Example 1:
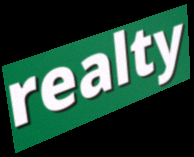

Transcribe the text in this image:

realty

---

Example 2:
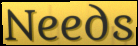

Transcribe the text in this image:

Needs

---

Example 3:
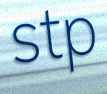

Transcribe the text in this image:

stp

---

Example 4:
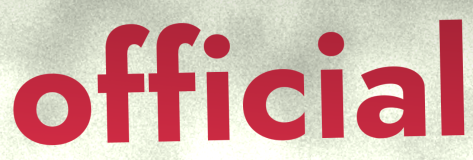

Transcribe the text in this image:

official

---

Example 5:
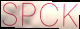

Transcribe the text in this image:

SPCK